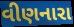
વીણનારા